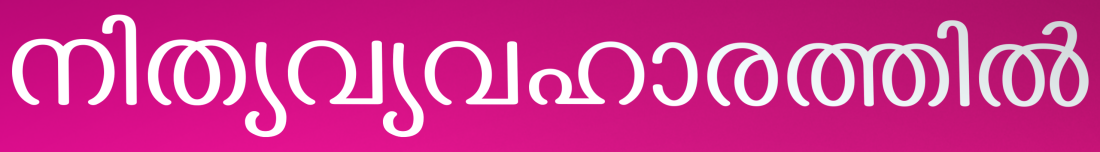
നിത്യവ്യവഹാരത്തിൽ